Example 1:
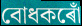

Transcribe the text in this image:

বোধকৰোঁ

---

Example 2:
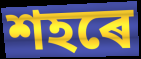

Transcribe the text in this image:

শহৰে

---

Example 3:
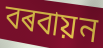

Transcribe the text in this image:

বৰবায়ন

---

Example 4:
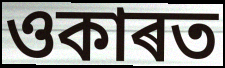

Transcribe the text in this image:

ওকাৰত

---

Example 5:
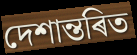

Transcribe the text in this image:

দেশান্তৰিত